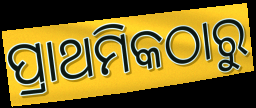
ପ୍ରାଥମିକଠାରୁ